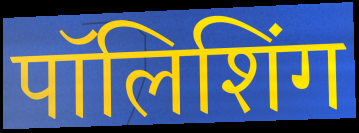
पॉलिशिंग